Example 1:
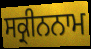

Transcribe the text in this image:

ਸਕ੍ਰੀਨਨਾਮ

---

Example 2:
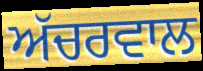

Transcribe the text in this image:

ਅੱਚਰਵਾਲ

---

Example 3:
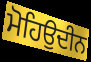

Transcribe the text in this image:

ਮੋਹਿਉਦੀਨ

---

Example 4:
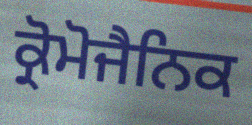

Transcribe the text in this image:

ਕ੍ਰੋਮੋਜੈਨਿਕ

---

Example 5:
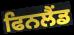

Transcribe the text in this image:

ਫਿਨਲੈਂਡ